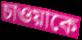
চাওয়াকে